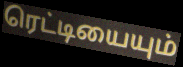
ரெட்டியையும்